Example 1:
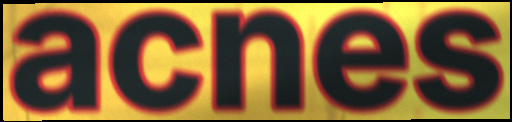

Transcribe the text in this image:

acnes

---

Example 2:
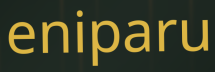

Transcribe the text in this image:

eniparu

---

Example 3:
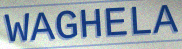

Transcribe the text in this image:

WAGHELA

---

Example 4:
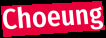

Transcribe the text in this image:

Choeung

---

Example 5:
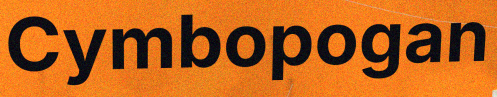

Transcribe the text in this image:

Cymbopogan